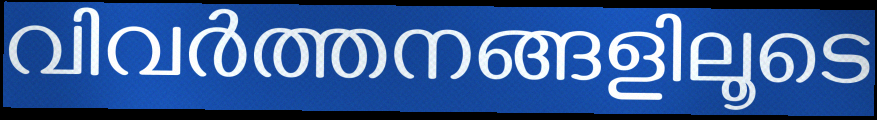
വിവർത്തനങ്ങളിലൂടെ